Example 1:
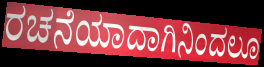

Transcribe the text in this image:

ರಚನೆಯಾದಾಗಿನಿಂದಲೂ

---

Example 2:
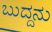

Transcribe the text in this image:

ಬುದ್ದನು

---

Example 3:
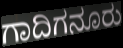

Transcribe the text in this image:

ಗಾದಿಗನೂರು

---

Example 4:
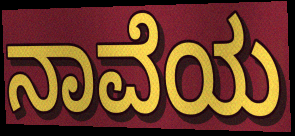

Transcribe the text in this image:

ನಾವೆಯ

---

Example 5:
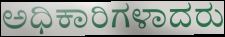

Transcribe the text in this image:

ಅಧಿಕಾರಿಗಳಾದರು